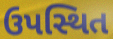
ઉપસ્થિત